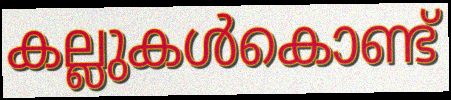
കല്ലുകൾകൊണ്ട്